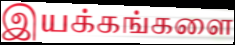
இயக்கங்களை